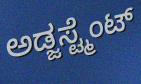
ಅಡ್ಜಸ್ಟ್ಮೆಂಟ್